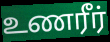
உணரீர்